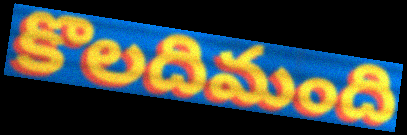
కొలదిమంది